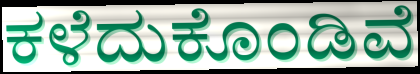
ಕಳೆದುಕೊಂಡಿವೆ